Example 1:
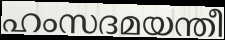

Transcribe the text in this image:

ഹംസദമയന്തീ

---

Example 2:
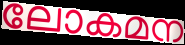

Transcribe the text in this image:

ലോകമന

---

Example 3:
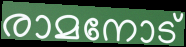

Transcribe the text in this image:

രാമനോട്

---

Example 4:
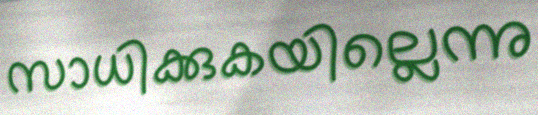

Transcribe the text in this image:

സാധിക്കുകയില്ലെന്നു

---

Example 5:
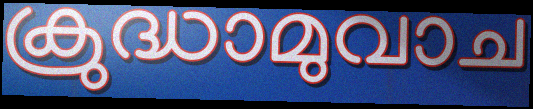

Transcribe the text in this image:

ക്രുദ്ധാമുവാച